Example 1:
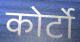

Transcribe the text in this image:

कोर्टो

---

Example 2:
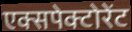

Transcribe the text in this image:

एक्सपेक्टोरेंट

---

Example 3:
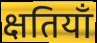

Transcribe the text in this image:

क्षतियाँ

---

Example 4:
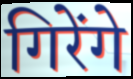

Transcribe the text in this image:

गिरेंगे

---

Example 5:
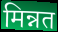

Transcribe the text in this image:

मिन्नत